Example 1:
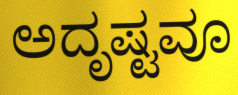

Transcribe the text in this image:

ಅದೃಷ್ಟವೂ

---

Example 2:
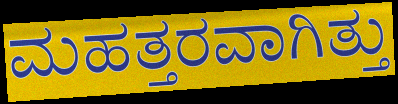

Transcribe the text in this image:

ಮಹತ್ತರವಾಗಿತ್ತು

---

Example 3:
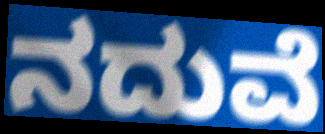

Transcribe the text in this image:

ನದುವೆ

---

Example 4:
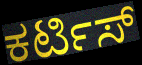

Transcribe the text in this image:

ಕರ್ಟಿಸ್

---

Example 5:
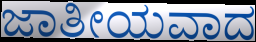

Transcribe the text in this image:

ಜಾತೀಯವಾದ